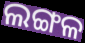
ଲଙ୍ଗଳ